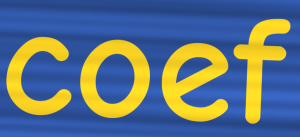
coef